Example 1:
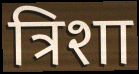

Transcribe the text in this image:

त्रिशा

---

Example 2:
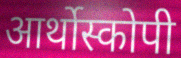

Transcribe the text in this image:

आर्थोस्कोपी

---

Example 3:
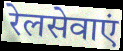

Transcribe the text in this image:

रेलसेवाएं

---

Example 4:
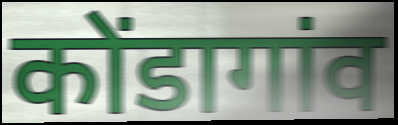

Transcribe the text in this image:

कोंडागांव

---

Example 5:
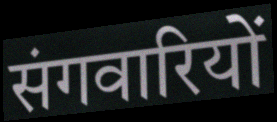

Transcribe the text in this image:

संगवारियों